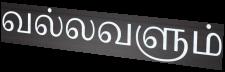
வல்லவளும்